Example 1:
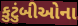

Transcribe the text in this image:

કુટુંબીઓના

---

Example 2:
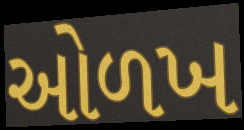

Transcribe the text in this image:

ઓળખ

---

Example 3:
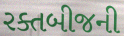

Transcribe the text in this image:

રક્તબીજની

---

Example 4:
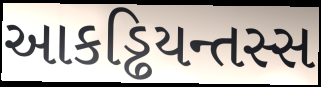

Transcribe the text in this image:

આકડ્ઢિયન્તસ્સ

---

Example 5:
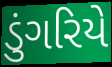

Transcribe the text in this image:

ડુંગરિયે